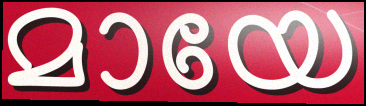
മായേ